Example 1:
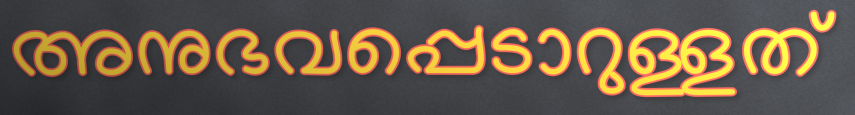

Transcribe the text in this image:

അനുഭവപ്പെടാറുള്ളത്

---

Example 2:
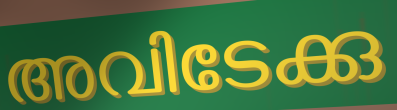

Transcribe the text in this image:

അവിടേക്കു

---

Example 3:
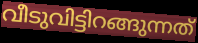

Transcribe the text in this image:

വീടുവിട്ടിറങ്ങുന്നത്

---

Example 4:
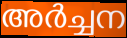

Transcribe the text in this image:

അർച്ചന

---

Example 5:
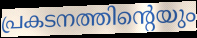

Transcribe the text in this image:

പ്രകടനത്തിന്റെയും